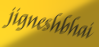
jigneshbhai